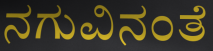
ನಗುವಿನಂತೆ